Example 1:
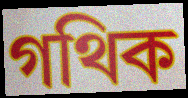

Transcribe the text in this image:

গথিক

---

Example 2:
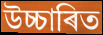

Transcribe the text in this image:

উচ্চাৰিত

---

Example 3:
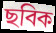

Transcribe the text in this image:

ছবিক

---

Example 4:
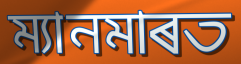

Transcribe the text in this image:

ম্যানমাৰত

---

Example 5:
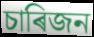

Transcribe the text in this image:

চাৰিজন